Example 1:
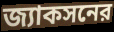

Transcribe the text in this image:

জ্যাকসনের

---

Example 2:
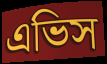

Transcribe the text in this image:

এভিস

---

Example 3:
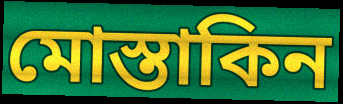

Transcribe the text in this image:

মোস্তাকিন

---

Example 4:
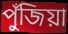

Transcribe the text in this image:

পুঁজিয়া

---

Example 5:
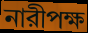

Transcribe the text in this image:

নারীপক্ষ